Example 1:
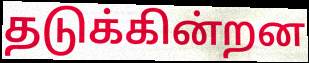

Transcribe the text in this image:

தடுக்கின்றன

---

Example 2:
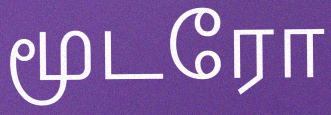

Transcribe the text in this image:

மூடரோ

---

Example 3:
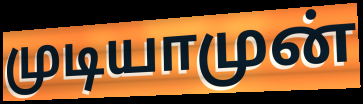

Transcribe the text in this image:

முடியாமுன்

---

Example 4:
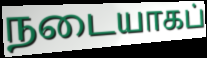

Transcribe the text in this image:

நடையாகப்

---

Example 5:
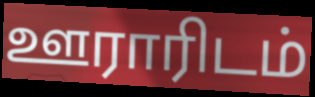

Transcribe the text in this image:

ஊராரிடம்